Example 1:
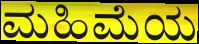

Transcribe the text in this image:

ಮಹಿಮೆಯ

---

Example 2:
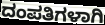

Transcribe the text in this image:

ದಂಪತಿಗಳಾಗಿ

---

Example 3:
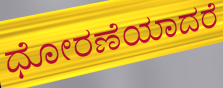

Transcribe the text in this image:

ಧೋರಣೆಯಾದರೆ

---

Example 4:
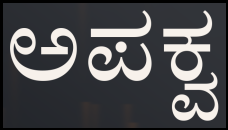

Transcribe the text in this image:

ಅಪಕ್ವ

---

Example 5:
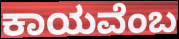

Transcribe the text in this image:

ಕಾಯವೆಂಬ